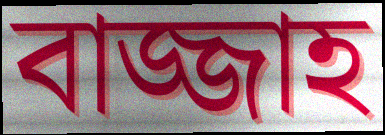
বাজ্জাহ